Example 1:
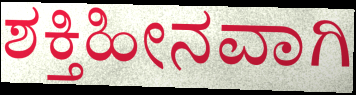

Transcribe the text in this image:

ಶಕ್ತಿಹೀನವಾಗಿ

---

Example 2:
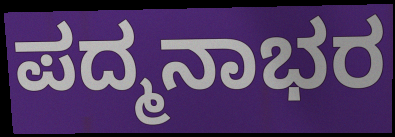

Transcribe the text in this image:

ಪದ್ಮನಾಭರ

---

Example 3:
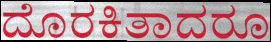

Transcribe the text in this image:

ದೊರಕಿತಾದರೂ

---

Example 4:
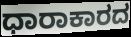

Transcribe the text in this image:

ಧಾರಾಕಾರದ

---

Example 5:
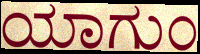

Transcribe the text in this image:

ಯಾಗುಂ